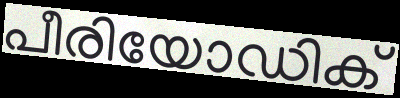
പീരിയോഡിക്